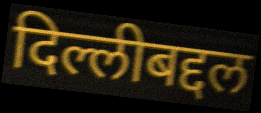
दिल्लीबद्दल